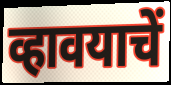
व्हावयाचें